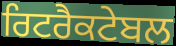
ਰਿਟਰੈਕਟੇਬਲ